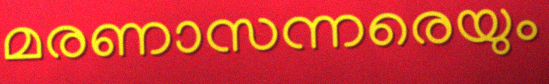
മരണാസന്നരെയും